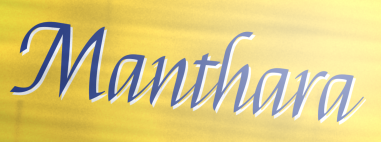
Manthara